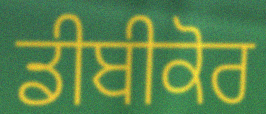
ਡੀਬੀਕੋਰ